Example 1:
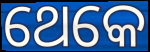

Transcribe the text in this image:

ଥେକେ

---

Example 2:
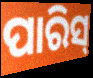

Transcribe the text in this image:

ପାରିସ୍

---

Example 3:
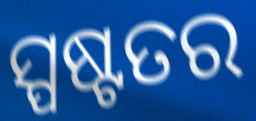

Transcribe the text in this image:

ସ୍ପଷ୍ଟତର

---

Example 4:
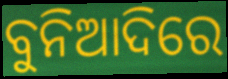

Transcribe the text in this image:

ବୁନିଆଦିରେ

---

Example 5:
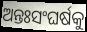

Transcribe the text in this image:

ଅନ୍ତଃସଂଘର୍ଷକୁ